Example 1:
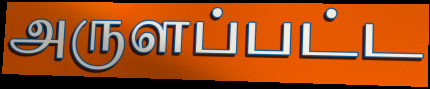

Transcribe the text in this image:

அருளப்பட்ட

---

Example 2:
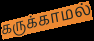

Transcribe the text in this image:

கருக்காமல்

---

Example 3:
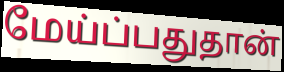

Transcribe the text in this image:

மேய்ப்பதுதான்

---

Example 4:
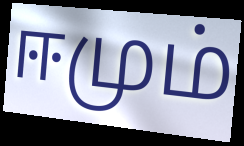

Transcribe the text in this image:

ஈமும்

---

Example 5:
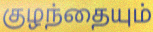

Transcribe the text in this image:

குழந்தையும்